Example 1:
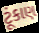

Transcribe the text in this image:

ટૂંકાણ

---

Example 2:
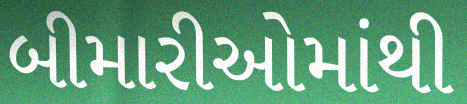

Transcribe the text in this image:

બીમારીઓમાંથી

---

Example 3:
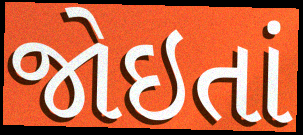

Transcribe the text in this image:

જોઇતાં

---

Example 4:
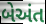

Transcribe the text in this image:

બેઅંત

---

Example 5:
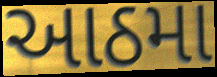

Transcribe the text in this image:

આઠમા